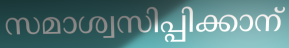
സമാശ്വസിപ്പിക്കാന്